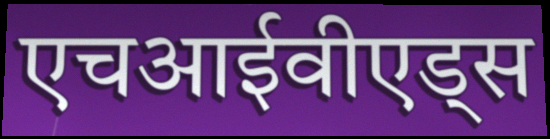
एचआईवीएड्स